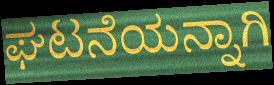
ಘಟನೆಯನ್ನಾಗಿ